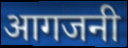
आगजनी